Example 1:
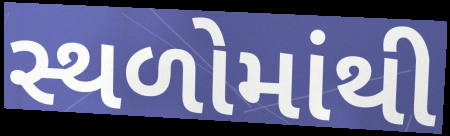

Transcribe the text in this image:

સ્થળોમાંથી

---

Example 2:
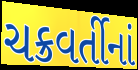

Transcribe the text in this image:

ચક્રવર્તીનાં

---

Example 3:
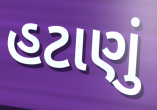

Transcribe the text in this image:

હટાણું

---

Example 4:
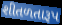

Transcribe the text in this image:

શીતળતારૂપ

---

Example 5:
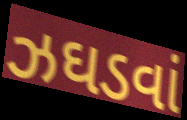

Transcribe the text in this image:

ઝઘડવાં